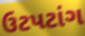
ઉટપટાંગ